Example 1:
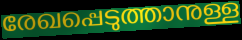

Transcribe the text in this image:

രേഖപ്പെടുത്താനുള്ള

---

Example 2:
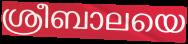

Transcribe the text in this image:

ശ്രീബാലയെ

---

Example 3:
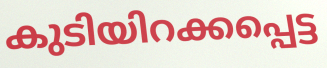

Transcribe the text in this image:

കുടിയിറക്കപ്പെട്ട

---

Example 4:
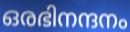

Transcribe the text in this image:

ഒരഭിനന്ദനം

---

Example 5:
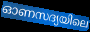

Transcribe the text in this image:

ഓണസദ്യയിലെ